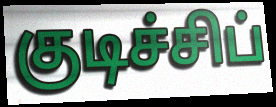
குடிச்சிப்